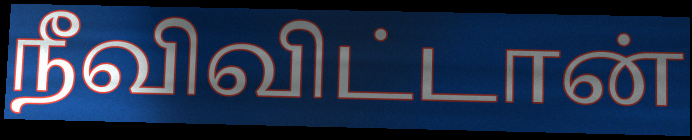
நீவிவிட்டான்